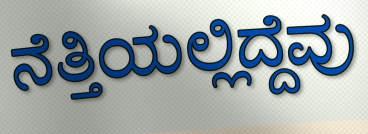
ನೆತ್ತಿಯಲ್ಲಿದ್ದೆವು